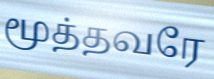
மூத்தவரே